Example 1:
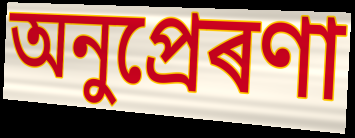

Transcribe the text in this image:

অনুপ্ৰেৰণা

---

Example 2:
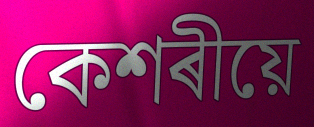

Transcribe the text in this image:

কেশৰীয়ে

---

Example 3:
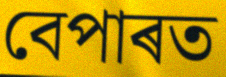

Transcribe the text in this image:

বেপাৰত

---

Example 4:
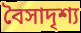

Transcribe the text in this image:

বৈসাদৃশ্য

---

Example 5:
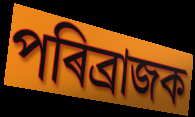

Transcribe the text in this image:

পৰিব্ৰাজক